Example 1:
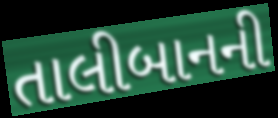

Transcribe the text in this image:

તાલીબાનની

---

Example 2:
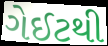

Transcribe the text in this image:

ગેઈટથી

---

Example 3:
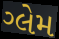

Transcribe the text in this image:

ગ્લેમ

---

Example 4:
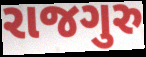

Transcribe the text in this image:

રાજગુરુ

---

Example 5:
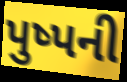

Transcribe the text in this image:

પુષ્પની